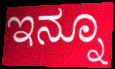
ಇನ್ನೂ